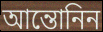
আন্তোনিন